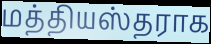
மத்தியஸ்தராக